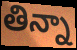
తిన్నా